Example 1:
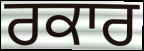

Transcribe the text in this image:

ਰਕਾਰ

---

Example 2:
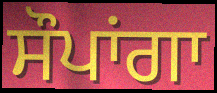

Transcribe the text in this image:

ਸੌਪਾਂਗਾ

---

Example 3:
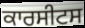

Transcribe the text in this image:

ਕਾਰਸੀਟਸ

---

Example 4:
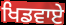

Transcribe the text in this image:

ਖਿਡਵਾਏ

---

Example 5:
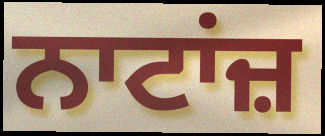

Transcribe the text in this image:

ਨਾਟਾਂਜ਼